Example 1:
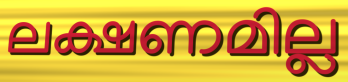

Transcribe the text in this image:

ലക്ഷണമില്ല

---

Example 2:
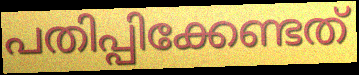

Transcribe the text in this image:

പതിപ്പിക്കേണ്ടത്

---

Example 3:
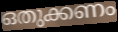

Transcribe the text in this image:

ഒതുക്കണം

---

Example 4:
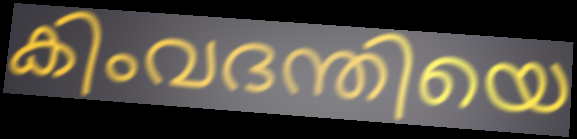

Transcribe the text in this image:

കിംവദന്തിയെ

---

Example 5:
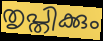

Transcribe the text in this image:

തൃപ്തിക്കും